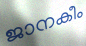
ജാനകീം